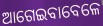
ଆଗେଇବାବେଳେ